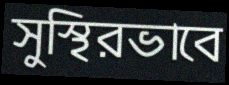
সুস্থিরভাবে